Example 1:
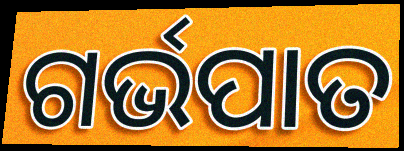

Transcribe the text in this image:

ଗର୍ଭପାତ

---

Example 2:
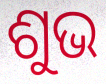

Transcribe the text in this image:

ଶୁଭ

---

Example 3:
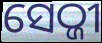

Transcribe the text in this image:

ସେଠ୍ଜୀ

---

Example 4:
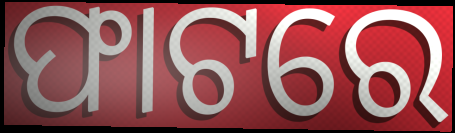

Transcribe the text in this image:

ଫାଟରେ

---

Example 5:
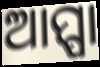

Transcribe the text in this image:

ଆପ୍ପା